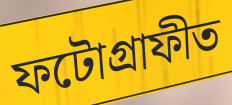
ফটোগ্ৰাফীত